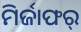
ମିର୍ଜାଫର୍